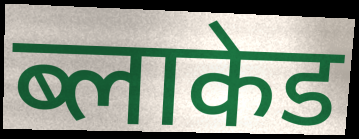
ब्लाकेड